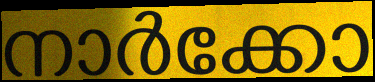
നാർക്കോ